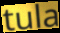
tula